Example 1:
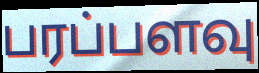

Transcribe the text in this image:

பரப்பளவு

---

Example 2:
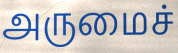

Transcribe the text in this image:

அருமைச்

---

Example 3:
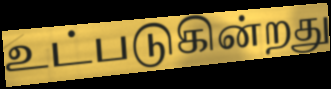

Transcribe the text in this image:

உட்படுகின்றது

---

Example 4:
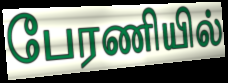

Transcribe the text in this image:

பேரணியில்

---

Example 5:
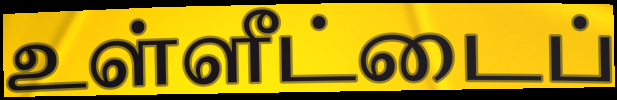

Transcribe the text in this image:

உள்ளீட்டைப்